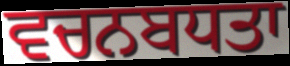
ਵਚਨਬਧਤਾ